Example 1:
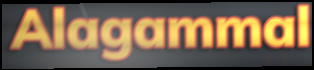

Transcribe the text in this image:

Alagammal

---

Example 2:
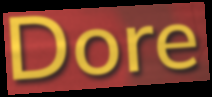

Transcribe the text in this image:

Dore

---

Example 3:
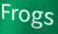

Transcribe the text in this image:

Frogs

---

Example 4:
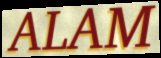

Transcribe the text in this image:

ALAM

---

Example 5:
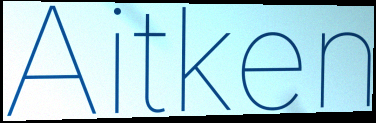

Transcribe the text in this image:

Aitken